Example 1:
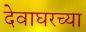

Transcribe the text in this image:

देवाघरच्या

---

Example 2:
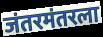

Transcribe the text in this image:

जंतरमंतरला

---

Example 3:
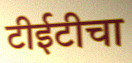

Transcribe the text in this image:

टीईटीचा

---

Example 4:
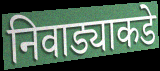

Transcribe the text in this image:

निवाड्याकडे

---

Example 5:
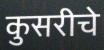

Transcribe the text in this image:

कुसरीचे